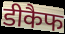
डीकैफ